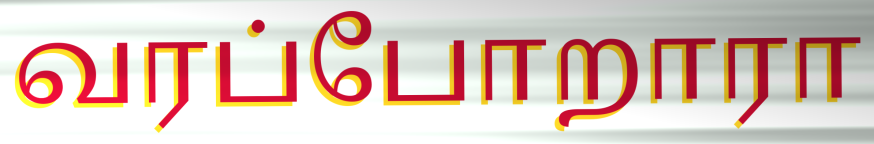
வரப்போறாரா